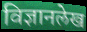
विज्ञानलेख